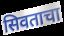
सिवताचा